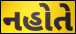
નહોતે